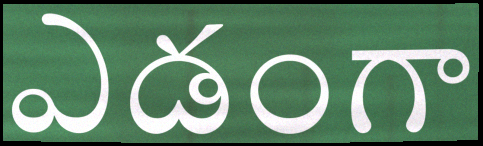
ఎడంగా